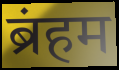
ब्रंहम